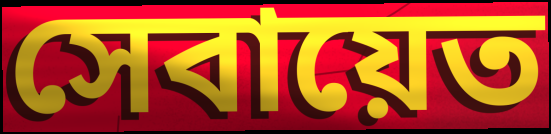
সেবায়েত